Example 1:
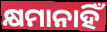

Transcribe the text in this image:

କ୍ଷମାନାହିଁ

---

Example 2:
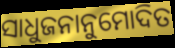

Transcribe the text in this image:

ସାଧୁଜନାନୁମୋଦିତ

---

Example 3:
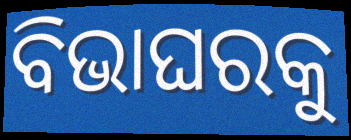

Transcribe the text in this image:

ବିଭାଘରକୁ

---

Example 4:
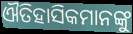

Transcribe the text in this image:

ଐତିହାସିକମାନଙ୍କୁ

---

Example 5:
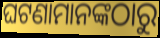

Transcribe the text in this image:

ଘଟଣାମାନଙ୍କଠାରୁ